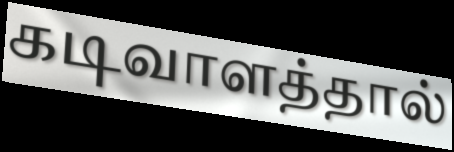
கடிவாளத்தால்